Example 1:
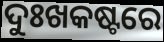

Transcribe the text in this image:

ଦୁଃଖକଷ୍ଟରେ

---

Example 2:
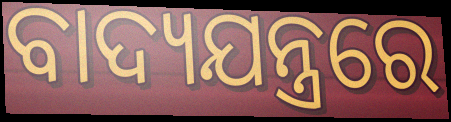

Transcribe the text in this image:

ବାଦ୍ୟଯନ୍ତ୍ରରେ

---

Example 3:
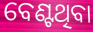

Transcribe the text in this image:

ବେଣ୍ଟଥିବା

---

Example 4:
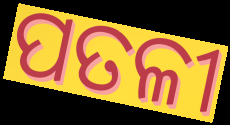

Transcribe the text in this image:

ପତଳୀ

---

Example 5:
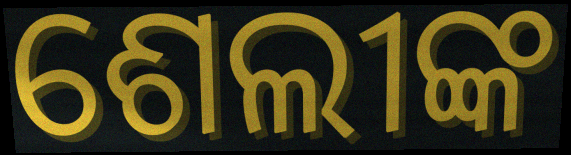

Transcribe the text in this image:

ଶେଲୀଙ୍କ